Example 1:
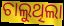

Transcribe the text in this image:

ଚାଲୁଥିଲା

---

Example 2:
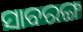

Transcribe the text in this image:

ସାବରଙ୍ଗ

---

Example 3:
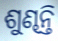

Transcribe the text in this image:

ଶୁଣ୍ଢନ୍ତି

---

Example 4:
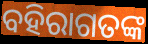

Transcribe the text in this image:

ବହିରାଗତଙ୍କ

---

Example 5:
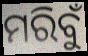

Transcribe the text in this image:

ମରିବୁଁ